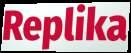
Replika